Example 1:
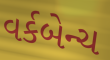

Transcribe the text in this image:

વર્કબેન્ચ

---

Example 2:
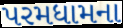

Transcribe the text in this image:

પરમધામના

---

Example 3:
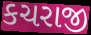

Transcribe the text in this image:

કચરાજી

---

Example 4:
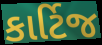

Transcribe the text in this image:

કાર્ટિજ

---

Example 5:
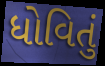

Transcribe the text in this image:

ધોવિતું